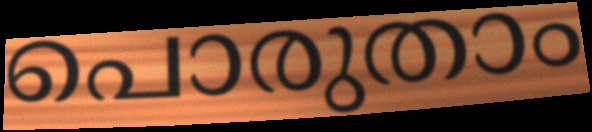
പൊരുതാം